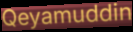
Qeyamuddin